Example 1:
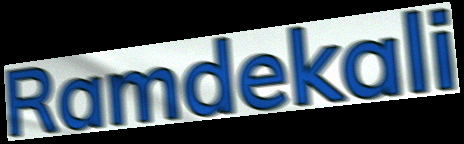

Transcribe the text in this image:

Ramdekali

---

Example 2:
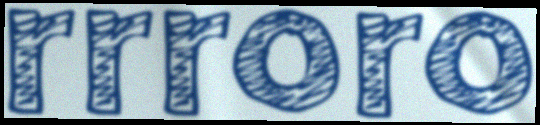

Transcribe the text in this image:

rrroro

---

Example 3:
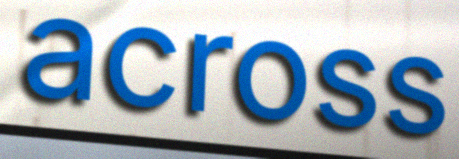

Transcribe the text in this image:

across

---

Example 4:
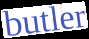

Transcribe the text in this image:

butler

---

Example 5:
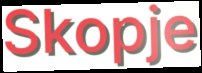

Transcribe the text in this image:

Skopje